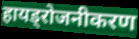
हायड्रोजनीकरण